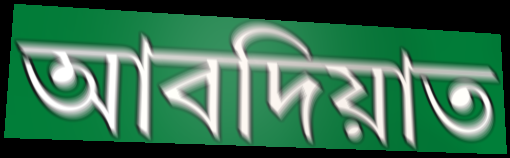
আবদিয়াত